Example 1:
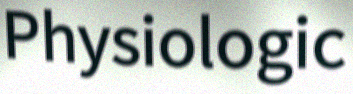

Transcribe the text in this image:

Physiologic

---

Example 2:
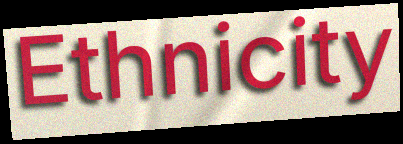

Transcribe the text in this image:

Ethnicity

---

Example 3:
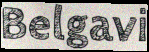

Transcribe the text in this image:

Belgavi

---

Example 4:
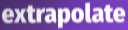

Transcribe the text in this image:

extrapolate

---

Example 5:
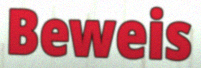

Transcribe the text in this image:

Beweis